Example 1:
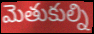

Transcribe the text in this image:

మెతుకుల్ని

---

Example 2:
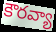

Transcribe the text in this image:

కౌరవ్యా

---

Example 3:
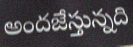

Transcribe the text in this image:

అందజేస్తున్నది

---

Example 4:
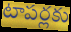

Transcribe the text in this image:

టాపర్లకు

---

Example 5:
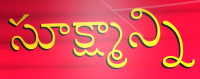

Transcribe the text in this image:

సూక్ష్మాన్ని